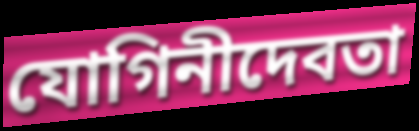
যোগিনীদেবতা